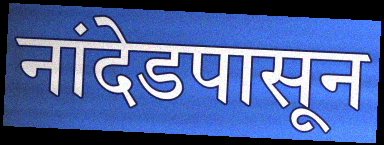
नांदेडपासून